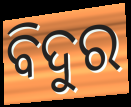
ବିଦୁର